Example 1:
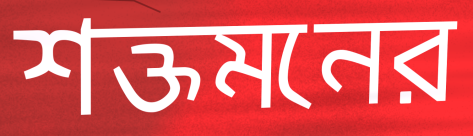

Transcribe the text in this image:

শক্তমনের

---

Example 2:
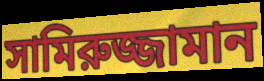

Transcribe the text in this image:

সামিরুজ্জামান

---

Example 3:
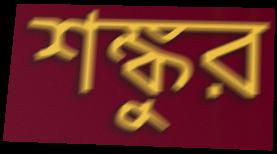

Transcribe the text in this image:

শঙ্কুর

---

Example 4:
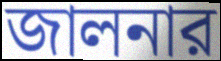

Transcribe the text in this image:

জালনার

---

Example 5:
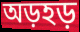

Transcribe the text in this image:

অড়হড়